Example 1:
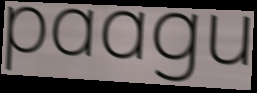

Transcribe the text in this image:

paagu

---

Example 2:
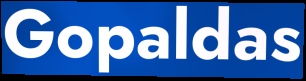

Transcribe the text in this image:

Gopaldas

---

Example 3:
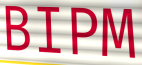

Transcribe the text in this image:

BIPM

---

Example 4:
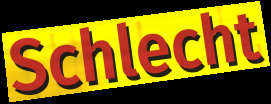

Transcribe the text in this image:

Schlecht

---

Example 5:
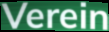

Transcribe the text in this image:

Verein